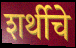
शर्थीचे